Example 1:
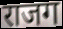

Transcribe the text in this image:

राजग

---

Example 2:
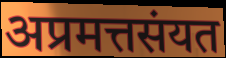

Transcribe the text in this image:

अप्रमत्तसंयत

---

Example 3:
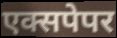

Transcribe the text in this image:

एक्सपेपर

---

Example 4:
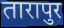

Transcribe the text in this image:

तारापुर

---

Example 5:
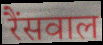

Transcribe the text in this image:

रैंसवाल